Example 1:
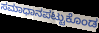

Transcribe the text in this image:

ಸಮಾಧಾನಪಟ್ಟುಕೊಂಡ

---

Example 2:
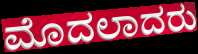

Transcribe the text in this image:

ಮೊದಲಾದರು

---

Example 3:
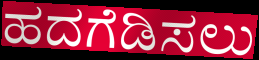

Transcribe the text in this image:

ಹದಗೆಡಿಸಲು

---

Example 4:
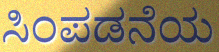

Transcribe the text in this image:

ಸಿಂಪಡನೆಯ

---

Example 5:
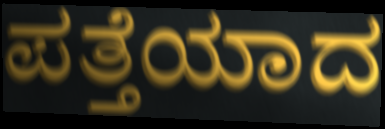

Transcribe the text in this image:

ಪತ್ತೆಯಾದ